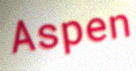
Aspen